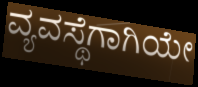
ವ್ಯವಸ್ಥೆಗಾಗಿಯೇ